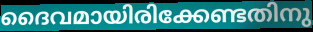
ദൈവമായിരിക്കേണ്ടതിനു